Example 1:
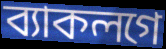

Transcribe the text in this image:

ব্যাকলগে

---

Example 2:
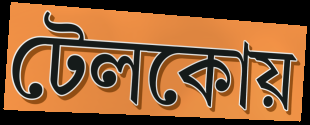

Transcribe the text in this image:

টেলকোয়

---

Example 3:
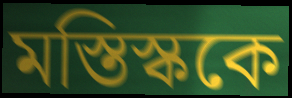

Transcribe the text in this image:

মস্তিস্ককে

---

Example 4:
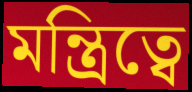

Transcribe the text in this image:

মন্ত্রিত্বে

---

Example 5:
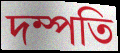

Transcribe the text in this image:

দম্পতি